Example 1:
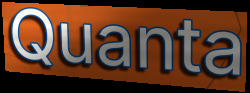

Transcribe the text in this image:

Quanta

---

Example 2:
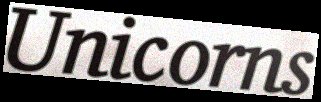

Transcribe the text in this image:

Unicorns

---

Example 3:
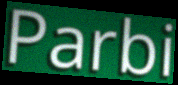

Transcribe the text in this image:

Parbi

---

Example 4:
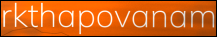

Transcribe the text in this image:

rkthapovanam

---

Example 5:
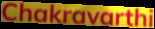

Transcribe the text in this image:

Chakravarthi